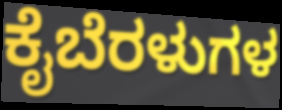
ಕೈಬೆರಳುಗಳ